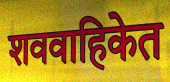
शववाहिकेत